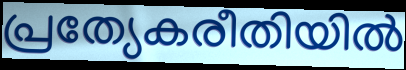
പ്രത്യേകരീതിയിൽ